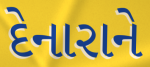
દેનારાને